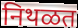
निथळत